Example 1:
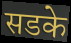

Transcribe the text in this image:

सडके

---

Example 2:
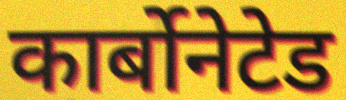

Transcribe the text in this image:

कार्बोनेटेड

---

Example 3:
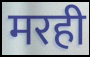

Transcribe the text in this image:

मरही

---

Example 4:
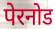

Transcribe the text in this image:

पेरनोड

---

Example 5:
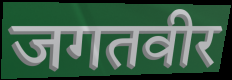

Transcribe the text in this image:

जगतवीर